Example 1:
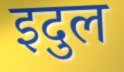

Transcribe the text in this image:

इदुल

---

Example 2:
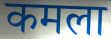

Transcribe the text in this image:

कमला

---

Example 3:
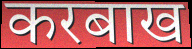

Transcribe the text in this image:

करबाख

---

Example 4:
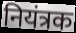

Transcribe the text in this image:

नियंत्रक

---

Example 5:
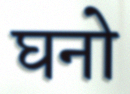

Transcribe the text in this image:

घनो